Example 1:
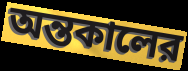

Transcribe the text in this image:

অন্তকালের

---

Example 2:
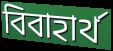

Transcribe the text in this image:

বিবাহার্থ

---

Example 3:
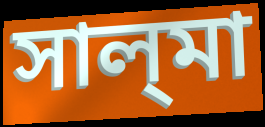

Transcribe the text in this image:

সাল্‌মা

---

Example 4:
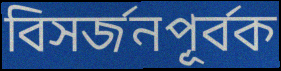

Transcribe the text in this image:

বিসর্জনপূর্বক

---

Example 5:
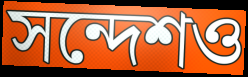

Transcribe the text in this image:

সন্দেশও